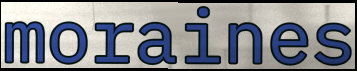
moraines